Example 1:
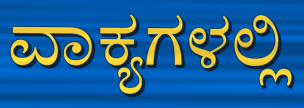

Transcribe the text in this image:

ವಾಕ್ಯಗಳಲ್ಲಿ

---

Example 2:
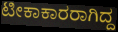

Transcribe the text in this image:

ಟೀಕಾಕಾರರಾಗಿದ್ದ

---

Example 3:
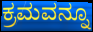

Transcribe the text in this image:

ಕ್ರಮವನ್ನೂ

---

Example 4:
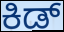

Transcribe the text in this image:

ಕಿಡ್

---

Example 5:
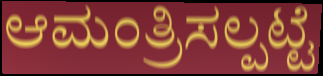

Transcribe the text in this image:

ಆಮಂತ್ರಿಸಲ್ಪಟ್ಟೆ